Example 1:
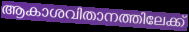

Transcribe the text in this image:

ആകാശവിതാനത്തിലേക്ക്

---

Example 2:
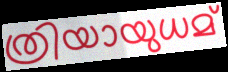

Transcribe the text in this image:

ത്രിയായുധമ്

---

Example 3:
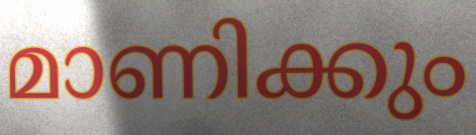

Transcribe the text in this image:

മാണിക്കും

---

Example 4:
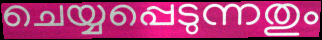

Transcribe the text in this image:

ചെയ്യപ്പെടുന്നതും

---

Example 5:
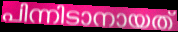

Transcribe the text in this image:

പിന്നിടാനായത്